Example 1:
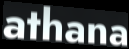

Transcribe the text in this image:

athana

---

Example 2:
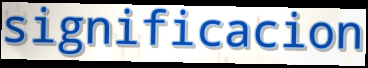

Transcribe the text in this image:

significacion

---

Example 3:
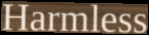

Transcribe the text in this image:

Harmless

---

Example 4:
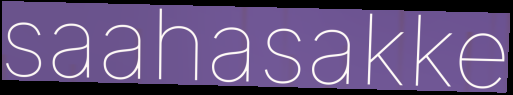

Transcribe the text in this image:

saahasakke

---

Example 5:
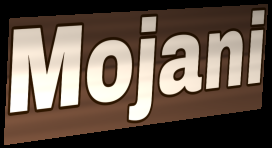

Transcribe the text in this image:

Mojani